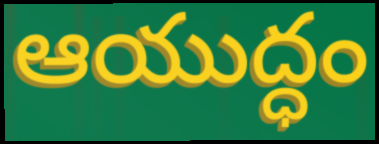
ఆయుద్ధం